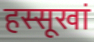
हस्सूखां